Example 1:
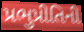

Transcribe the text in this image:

પ્રભુપ્રીતિની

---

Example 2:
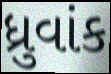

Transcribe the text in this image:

ધ્રુવાંક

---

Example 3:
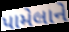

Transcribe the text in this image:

પામેલાને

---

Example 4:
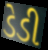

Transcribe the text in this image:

ડેડી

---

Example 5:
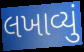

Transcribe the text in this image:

લખાવ્યું